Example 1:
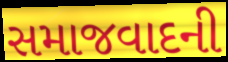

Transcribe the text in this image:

સમાજવાદની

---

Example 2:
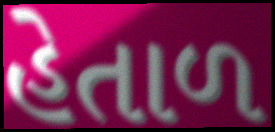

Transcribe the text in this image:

હેતાળ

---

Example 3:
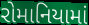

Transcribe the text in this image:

રોમાનિયામાં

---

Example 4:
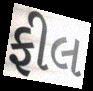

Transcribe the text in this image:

ફીલ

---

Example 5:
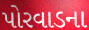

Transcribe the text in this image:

પોરવાડના